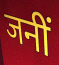
जनीं